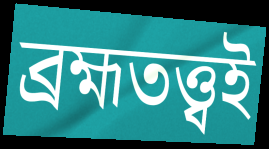
ব্রহ্মতত্ত্বই